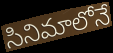
సినిమాలోనే